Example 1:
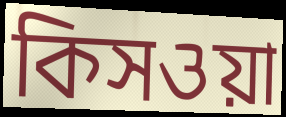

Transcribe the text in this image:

কিসওয়া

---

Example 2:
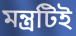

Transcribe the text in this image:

মন্ত্রটিই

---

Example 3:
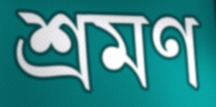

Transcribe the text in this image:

শ্রমণ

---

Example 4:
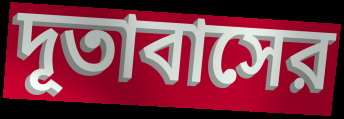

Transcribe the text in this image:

দূতাবাসের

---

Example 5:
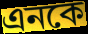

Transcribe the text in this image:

এনকে